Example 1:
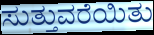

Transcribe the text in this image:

ಸುತ್ತುವರೆಯಿತು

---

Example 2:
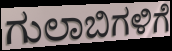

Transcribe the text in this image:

ಗುಲಾಬಿಗಳಿಗೆ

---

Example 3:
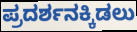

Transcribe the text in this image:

ಪ್ರದರ್ಶನಕ್ಕಿಡಲು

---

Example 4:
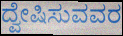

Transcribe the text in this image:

ದ್ವೇಷಿಸುವವರ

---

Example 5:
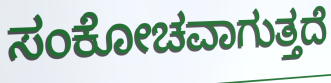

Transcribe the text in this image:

ಸಂಕೋಚವಾಗುತ್ತದೆ